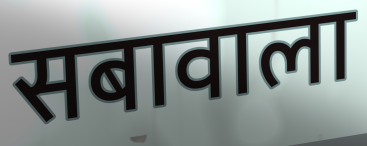
सबावाला